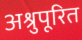
अश्रुपूरित